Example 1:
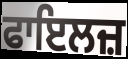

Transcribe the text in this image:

ਫਾਇਲਜ਼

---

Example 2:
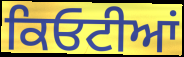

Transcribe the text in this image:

ਕਿਓਟੀਆਂ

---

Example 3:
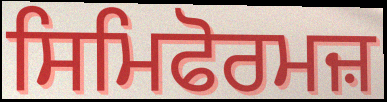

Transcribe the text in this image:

ਸਿਮਿਫੋਰਮਜ਼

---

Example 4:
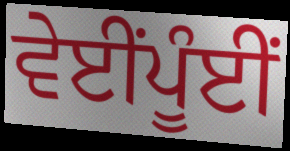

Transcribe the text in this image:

ਵੇਈਂਪੂੰਈਂ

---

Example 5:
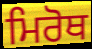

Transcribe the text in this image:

ਮਿਰੋਥ